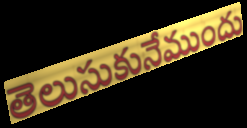
తెలుసుకునేముందు